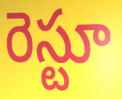
రెస్టూ